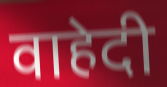
वाहेदी